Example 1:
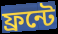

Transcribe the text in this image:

ফ্রন্টে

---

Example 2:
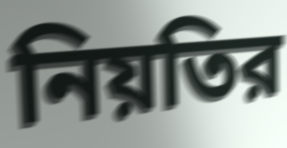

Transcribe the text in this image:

নিয়তির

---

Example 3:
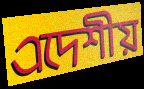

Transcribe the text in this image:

এদেশীয়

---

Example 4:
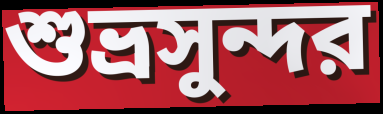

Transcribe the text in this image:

শুভ্রসুন্দর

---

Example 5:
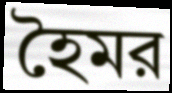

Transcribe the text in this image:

হৈমর